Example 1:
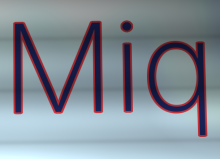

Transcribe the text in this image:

Miq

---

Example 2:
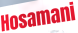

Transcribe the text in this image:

Hosamani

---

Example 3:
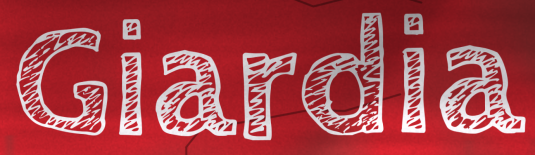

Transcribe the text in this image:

Giardia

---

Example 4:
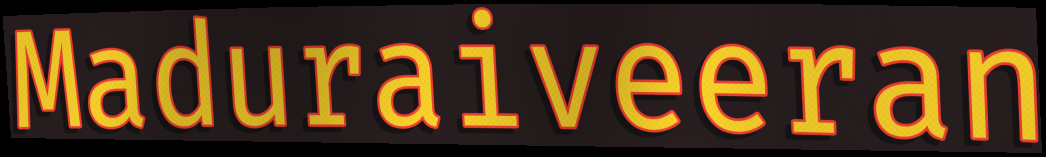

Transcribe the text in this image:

Maduraiveeran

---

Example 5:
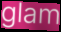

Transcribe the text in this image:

glam